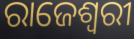
ରାଜେଶ୍ଵରୀ